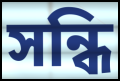
সন্ধি